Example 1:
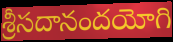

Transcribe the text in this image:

శ్రీసదానందయోగి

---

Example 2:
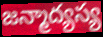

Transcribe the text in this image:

జన్మాద్యస్య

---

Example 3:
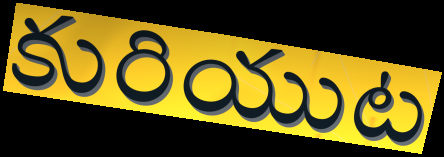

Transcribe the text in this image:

కురియుట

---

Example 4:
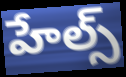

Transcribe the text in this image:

హేల్స్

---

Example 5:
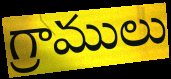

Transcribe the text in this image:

గ్రాములు